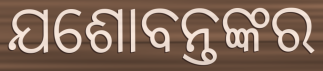
ଯଶୋବନ୍ତଙ୍କର